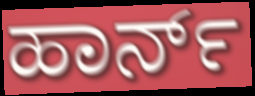
ಹಾರ್ನ್